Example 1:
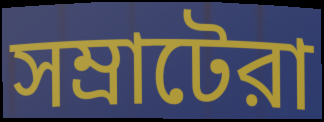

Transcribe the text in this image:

সম্রাটেরা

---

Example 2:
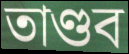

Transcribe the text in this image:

তাণ্ডব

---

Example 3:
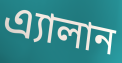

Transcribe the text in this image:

এ্যালান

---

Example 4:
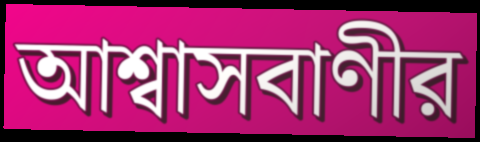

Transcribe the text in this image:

আশ্বাসবাণীর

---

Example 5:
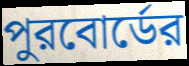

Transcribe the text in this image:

পুরবোর্ডের